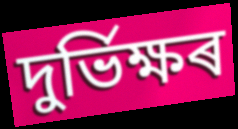
দুৰ্ভিক্ষৰ